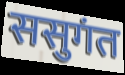
ससुगंत